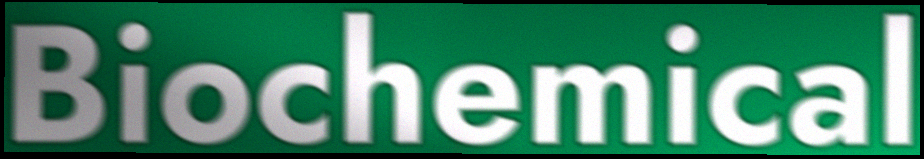
Biochemical